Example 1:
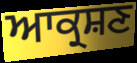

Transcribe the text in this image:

ਆਕ੍ਰਸ਼ਣ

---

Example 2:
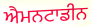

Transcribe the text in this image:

ਐਮਨਟਾਡੀਨ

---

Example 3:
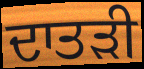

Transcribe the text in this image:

ਦਾਤੜੀ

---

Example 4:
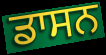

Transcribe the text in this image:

ਡਾਸਨ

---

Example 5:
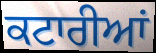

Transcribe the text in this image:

ਕਟਾਰੀਆਂ